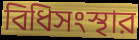
বিধিসংস্থার